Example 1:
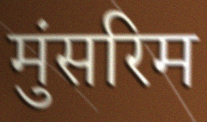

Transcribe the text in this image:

मुंसरिम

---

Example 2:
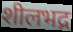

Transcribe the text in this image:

शीलभद्र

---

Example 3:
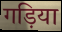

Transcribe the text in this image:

गड़िया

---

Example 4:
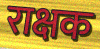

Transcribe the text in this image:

राक्षक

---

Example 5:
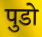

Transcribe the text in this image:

पुडो